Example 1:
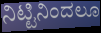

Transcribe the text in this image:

ನಿಟ್ಟಿನಿಂದಲೂ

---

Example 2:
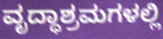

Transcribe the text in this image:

ವೃದ್ಧಾಶ್ರಮಗಳಲ್ಲಿ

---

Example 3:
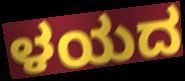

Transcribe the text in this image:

ಳಯದ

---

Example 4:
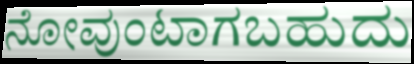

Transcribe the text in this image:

ನೋವುಂಟಾಗಬಹುದು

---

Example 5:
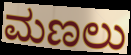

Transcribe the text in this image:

ಮಣಲು